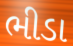
ભીડા